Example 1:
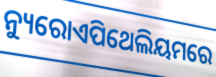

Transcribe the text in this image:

ନ୍ୟୁରୋଏପିଥେଲିୟମରେ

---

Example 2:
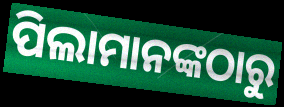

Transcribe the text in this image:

ପିଲାମାନଙ୍କଠାରୁ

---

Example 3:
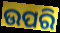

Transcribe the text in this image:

ଉପରି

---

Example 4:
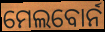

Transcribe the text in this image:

ମେଲବୋର୍ନ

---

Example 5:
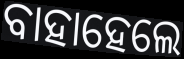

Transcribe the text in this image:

ବାହାହେଲେ